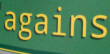
agains